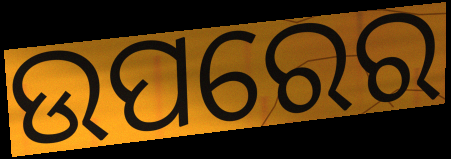
ଉପରେର